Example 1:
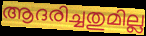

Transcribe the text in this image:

ആദരിച്ചതുമില്ല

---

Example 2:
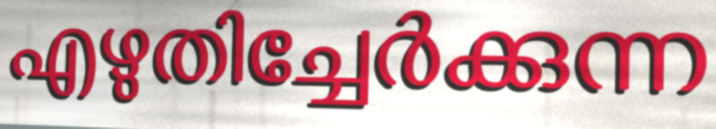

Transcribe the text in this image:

എഴുതിച്ചേർക്കുന്ന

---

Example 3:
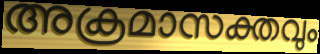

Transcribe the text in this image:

അക്രമാസക്തവും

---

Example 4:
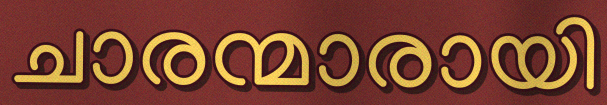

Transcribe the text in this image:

ചാരന്മാരായി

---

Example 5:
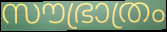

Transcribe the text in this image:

സൗഭ്രാത്രം